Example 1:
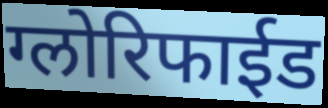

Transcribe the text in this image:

ग्लोरिफाईड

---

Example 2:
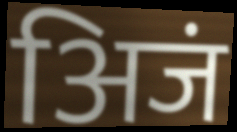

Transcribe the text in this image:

अिजं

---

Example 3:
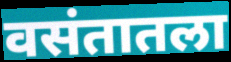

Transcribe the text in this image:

वसंतातला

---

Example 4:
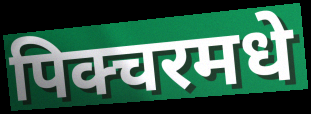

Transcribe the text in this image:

पिक्चरमधे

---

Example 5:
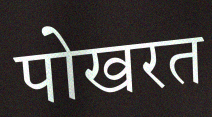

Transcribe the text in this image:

पोखरत